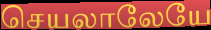
செயலாலேயே